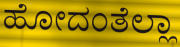
ಹೋದಂತೆಲ್ಲಾ